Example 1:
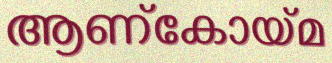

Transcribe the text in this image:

ആണ്കോയ്മ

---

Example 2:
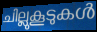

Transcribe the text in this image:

ചില്ലുകൂടുകൾ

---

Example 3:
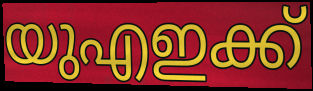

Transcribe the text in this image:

യുഎഇക്ക്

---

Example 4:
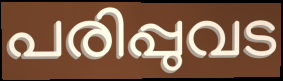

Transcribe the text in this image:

പരിപ്പുവട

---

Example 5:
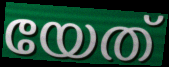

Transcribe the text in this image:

യേത്